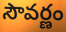
సౌవర్ణం